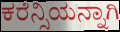
ಕರೆನ್ಸಿಯನ್ನಾಗಿ